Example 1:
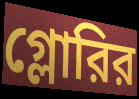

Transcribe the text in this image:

গ্লোরির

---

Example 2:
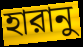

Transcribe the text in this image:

হারানু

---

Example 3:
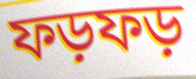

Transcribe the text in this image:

ফড়ফড়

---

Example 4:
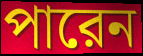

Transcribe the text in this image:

পারেন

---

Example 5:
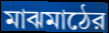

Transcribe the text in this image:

মাঝমাঠের